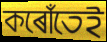
কৰোঁতেই